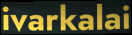
ivarkalai